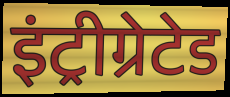
इंट्रीग्रेटेड